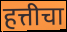
हत्तीचा